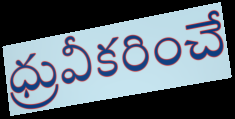
ధ్రువీకరించే